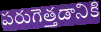
పరుగెత్తడానికి